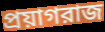
প্রয়াগরাজ